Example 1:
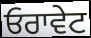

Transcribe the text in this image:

ਓਰਾਵੇਟ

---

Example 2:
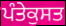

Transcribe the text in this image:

ਪੰਤੇਕੁਸਤ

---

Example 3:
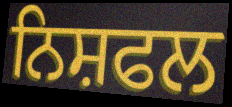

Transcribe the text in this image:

ਨਿਸ਼ਫਲ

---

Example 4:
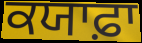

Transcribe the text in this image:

ਕਯਾਫ਼ਾ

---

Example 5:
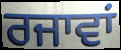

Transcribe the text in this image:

ਰਜਾਵਾਂ